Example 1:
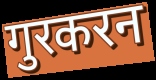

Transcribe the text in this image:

गुरकरन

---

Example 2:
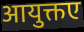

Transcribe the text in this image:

आयुक्तए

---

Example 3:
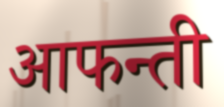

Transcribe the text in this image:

आफन्ती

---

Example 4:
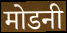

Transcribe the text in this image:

मोडनी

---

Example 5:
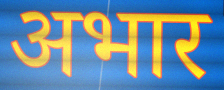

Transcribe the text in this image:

अभार